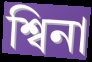
শ্বিনা